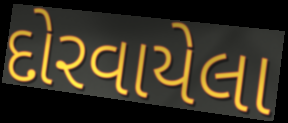
દોરવાયેલા